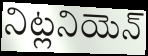
నిట్లనియెన్